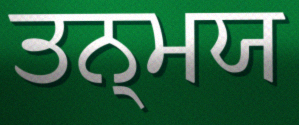
ਤਨ੍ਮਯ